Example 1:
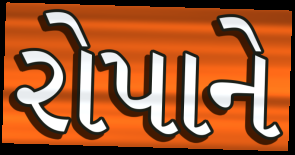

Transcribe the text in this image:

રોપાને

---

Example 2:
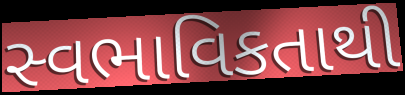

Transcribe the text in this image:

સ્વભાવિકતાથી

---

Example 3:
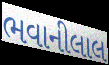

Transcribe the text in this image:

ભવાનીલાલ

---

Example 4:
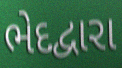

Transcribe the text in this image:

ભેદદ્વારા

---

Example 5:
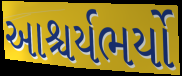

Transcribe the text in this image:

આશ્ચર્યભર્યો